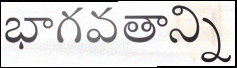
భాగవతాన్ని